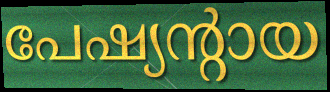
പേഷ്യന്റായ